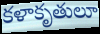
కళాకృతులూ